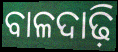
ବାଳଦାଢ଼ି